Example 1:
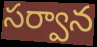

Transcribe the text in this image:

సర్వాన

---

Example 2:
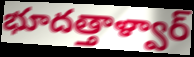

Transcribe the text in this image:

భూదత్తాళ్వార్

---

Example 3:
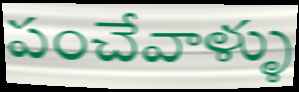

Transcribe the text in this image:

పంచేవాళ్ళు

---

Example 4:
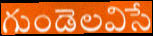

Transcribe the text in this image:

గుండెలవిసే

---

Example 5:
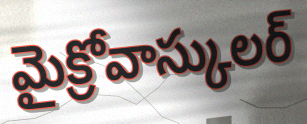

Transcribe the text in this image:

మైక్రోవాస్కులర్